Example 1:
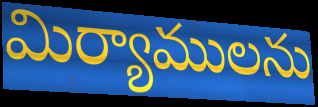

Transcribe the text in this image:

మిర్యాములను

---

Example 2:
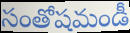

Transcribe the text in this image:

సంతోషమండీ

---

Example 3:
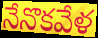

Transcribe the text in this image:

నేనొకవేళ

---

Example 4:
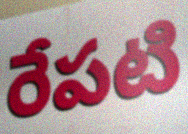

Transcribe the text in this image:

రేపటి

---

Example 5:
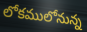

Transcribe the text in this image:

లోకములోనున్న